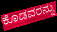
ಕೊಡವರನ್ನು